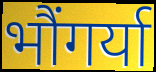
भौंगर्या